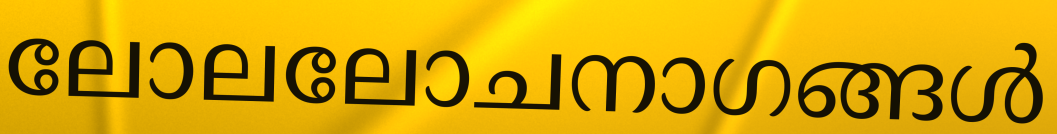
ലോലലോചനാഗങ്ങൾ